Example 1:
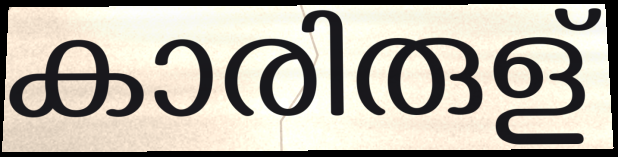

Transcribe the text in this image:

കാരിരുള്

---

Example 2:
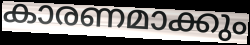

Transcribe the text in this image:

കാരണമാക്കും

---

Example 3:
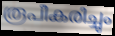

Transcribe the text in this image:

രൂപീകരിച്ചും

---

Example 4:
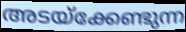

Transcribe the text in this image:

അടയ്ക്കേണ്ടുന്ന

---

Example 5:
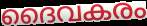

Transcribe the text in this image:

ദൈവകരം